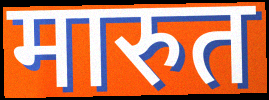
मारुत